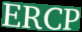
ERCP